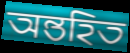
অন্তহিত